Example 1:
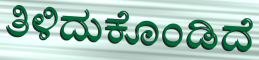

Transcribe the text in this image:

ತಿಳಿದುಕೊಂಡಿದೆ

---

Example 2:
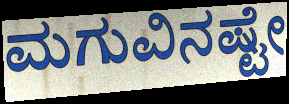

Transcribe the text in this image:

ಮಗುವಿನಷ್ಟೇ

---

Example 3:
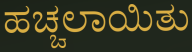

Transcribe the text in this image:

ಹಚ್ಚಲಾಯಿತು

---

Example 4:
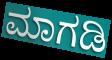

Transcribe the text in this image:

ಮಾಗಡಿ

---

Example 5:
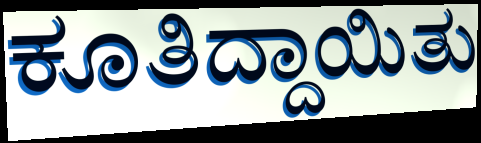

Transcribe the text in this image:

ಕೂತಿದ್ದಾಯಿತು